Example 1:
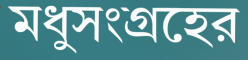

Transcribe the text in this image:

মধুসংগ্রহের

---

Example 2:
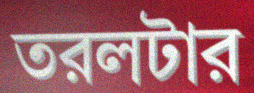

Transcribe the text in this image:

তরলটার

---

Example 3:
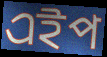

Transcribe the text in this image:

এইপ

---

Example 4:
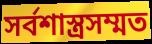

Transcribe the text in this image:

সর্বশাস্ত্রসম্মত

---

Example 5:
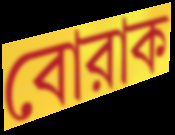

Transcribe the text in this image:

বোরাক